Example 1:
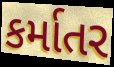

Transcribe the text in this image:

કર્માતર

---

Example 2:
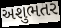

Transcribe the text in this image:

અશુભતર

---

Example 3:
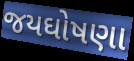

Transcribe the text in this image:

જયઘોષણા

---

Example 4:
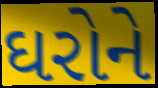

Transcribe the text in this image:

ઘરોને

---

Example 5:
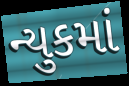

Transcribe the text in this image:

ન્યુકમાં